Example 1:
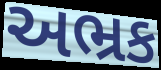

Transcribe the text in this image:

અભ્રક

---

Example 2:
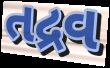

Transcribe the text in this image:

તદ્રવ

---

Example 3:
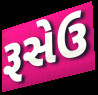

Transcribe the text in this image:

રૂસેઉ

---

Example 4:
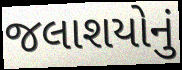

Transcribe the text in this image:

જલાશયોનું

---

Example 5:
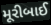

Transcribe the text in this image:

મૂરીબાઈ